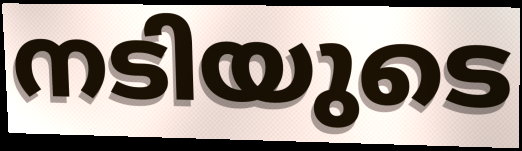
നടിയുടെ